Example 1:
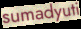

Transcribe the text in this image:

sumadyuti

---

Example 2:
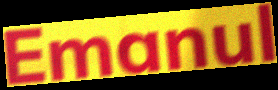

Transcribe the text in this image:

Emanul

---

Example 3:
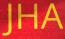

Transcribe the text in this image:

JHA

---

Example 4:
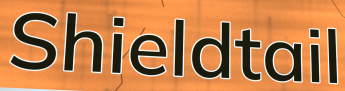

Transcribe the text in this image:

Shieldtail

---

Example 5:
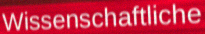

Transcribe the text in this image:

Wissenschaftliche